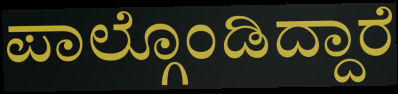
ಪಾಲ್ಗೊಂಡಿದ್ದಾರೆ